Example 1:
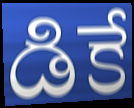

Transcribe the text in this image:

డికే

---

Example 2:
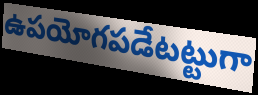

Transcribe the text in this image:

ఉపయోగపడేటట్టుగా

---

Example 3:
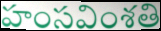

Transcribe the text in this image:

హంసవింశతి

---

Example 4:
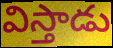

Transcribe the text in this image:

విస్తాడు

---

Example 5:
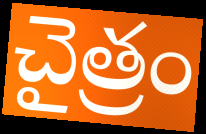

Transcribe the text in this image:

చైత్రం